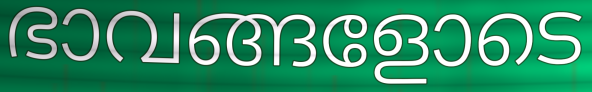
ഭാവങ്ങളോടെ